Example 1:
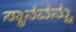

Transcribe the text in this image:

ಸ್ಥಾನವನ್ನು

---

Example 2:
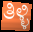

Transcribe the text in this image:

ತಿಳ್ಳಿ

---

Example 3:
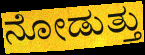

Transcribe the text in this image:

ನೋಡುತ್ತು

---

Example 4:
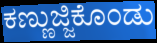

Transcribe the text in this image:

ಕಣ್ಣುಜ್ಜಿಕೊಂಡು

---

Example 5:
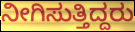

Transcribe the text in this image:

ನೀಗಿಸುತ್ತಿದ್ದರು